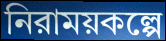
নিরাময়কল্পে